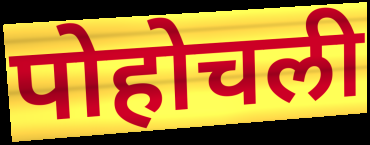
पोहोचली